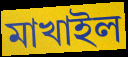
মাখাইল